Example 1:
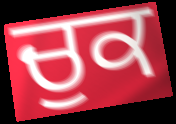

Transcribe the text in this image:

ਚੁਕ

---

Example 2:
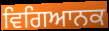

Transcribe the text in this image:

ਵਿਗਿਆਨਕ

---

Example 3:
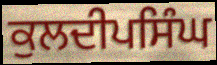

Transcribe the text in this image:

ਕੁਲਦੀਪਸਿੰਘ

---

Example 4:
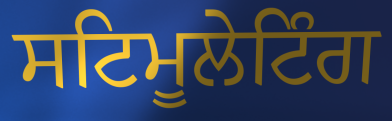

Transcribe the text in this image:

ਸਟਿਮੂਲੇਟਿੰਗ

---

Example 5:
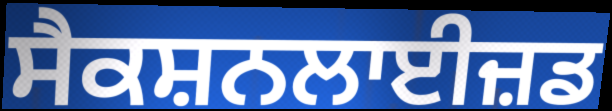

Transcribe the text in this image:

ਸੈਕਸ਼ਨਲਾਈਜ਼ਡ